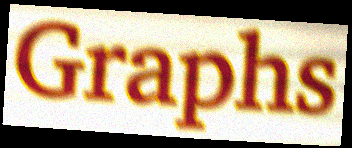
Graphs